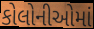
કોલોનીઓમાં